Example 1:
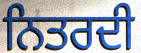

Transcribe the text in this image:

ਨਿਤਰਦੀ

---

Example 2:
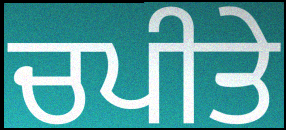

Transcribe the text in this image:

ਚਪੀਤੇ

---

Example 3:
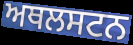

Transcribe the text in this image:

ਅਥਲਸਟਨ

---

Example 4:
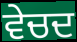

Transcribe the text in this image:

ਵੇਚਦ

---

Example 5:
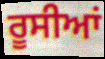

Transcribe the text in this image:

ਰੂਸੀਆਂ